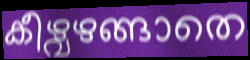
കീഴ്വഴങ്ങാതെ